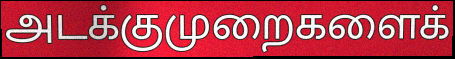
அடக்குமுறைகளைக்